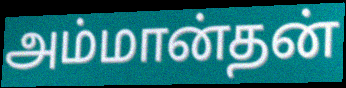
அம்மான்தன்